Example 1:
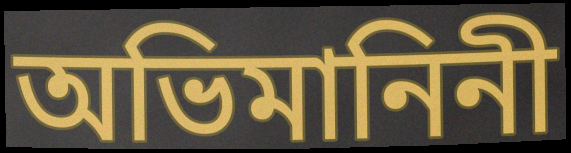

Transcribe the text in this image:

অভিমানিনী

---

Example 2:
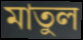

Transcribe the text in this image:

মাতুল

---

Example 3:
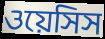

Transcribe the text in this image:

ওয়েসিস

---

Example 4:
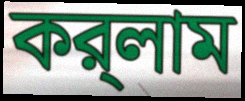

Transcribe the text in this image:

কর্‌লাম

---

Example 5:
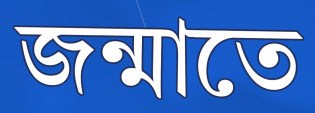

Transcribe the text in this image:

জন্মাতে